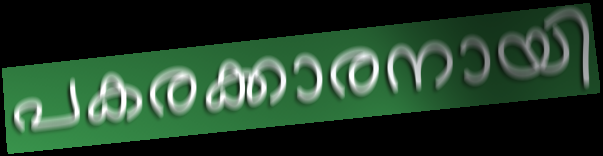
പകരക്കാരനായി